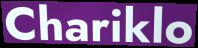
Chariklo